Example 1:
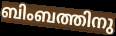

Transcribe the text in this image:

ബിംബത്തിനു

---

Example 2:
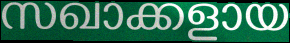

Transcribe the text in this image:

സഖാക്കളായ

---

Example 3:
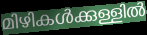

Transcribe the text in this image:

മിഴികൾക്കുള്ളിൽ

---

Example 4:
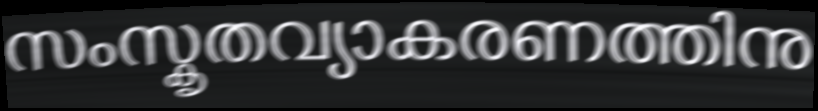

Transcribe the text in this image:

സംസ്കൃതവ്യാകരണത്തിനു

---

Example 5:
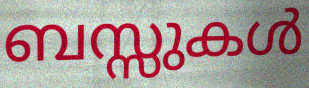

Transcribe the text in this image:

ബസ്സുകൾ